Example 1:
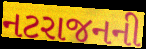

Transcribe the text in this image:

નટરાજનની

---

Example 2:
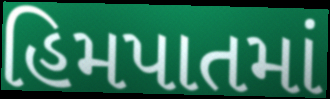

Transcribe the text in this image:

હિમપાતમાં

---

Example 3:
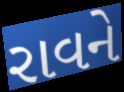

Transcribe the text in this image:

રાવને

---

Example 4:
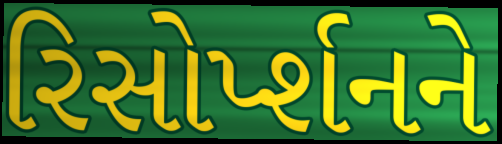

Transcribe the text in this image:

રિસોર્પ્શનને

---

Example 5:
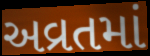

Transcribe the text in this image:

અવ્રતમાં